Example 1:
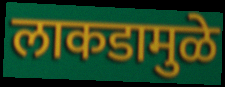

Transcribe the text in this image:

लाकडामुळे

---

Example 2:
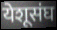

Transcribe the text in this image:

येशूसंघ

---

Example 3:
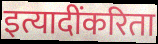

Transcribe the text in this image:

इत्यादींकरिता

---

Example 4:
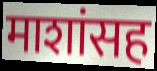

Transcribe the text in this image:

माशांसह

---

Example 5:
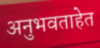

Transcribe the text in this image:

अनुभवताहेत